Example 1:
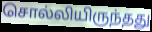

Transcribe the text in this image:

சொல்லியிருந்தது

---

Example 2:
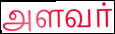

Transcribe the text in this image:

அளவர்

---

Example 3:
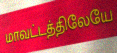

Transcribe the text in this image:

மாவட்டத்திலேயே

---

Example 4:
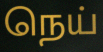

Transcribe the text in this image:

நெய்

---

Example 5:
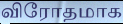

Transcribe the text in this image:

விரோதமாக